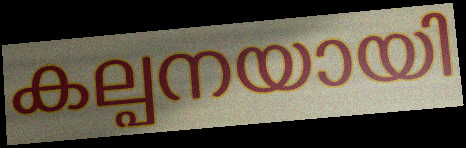
കല്പനയായി